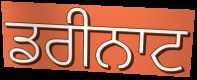
ਡਰੀਨਾਟ